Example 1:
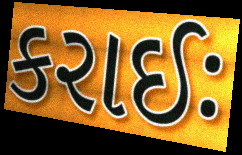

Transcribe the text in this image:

કરાઈઃ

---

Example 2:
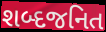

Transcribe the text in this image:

શબ્દજનિત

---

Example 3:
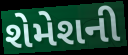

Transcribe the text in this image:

શેમેશની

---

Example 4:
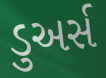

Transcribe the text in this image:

ડુઅર્સ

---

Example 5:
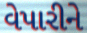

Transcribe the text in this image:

વેપારીને